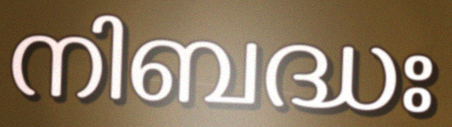
നിബദ്ധഃ